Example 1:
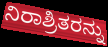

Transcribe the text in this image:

ನಿರಾಶ್ರಿತರನ್ನು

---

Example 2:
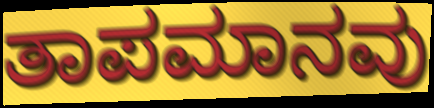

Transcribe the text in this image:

ತಾಪಮಾನವು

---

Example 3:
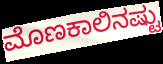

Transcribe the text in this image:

ಮೊಣಕಾಲಿನಷ್ಟು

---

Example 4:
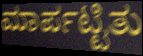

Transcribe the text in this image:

ಮಾರ್ಪಟ್ಟಿತು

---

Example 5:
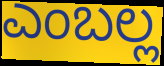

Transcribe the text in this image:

ಎಂಬಲ್ಲ